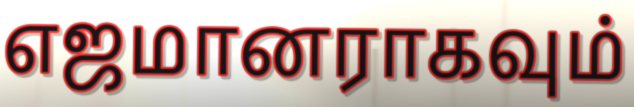
எஜமானராகவும்